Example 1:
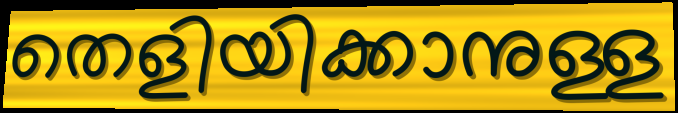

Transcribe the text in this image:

തെളിയിക്കാനുള്ള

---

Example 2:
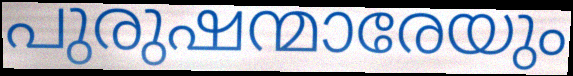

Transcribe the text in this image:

പുരുഷന്മാരേയും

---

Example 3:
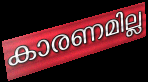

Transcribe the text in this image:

കാരണമില്ല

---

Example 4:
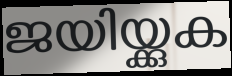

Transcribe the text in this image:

ജയിയ്ക്കുക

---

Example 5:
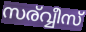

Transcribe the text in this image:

സര്വ്വീസ്